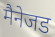
मैनेजड